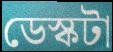
ডেস্কটা